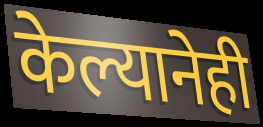
केल्यानेही